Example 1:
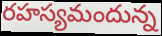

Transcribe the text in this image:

రహస్యమందున్న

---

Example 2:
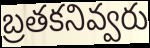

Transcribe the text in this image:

బ్రతకనివ్వరు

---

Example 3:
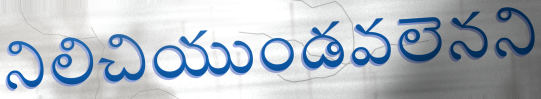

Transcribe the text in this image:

నిలిచియుండవలెనని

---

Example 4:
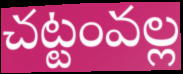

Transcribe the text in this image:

చట్టంవల్ల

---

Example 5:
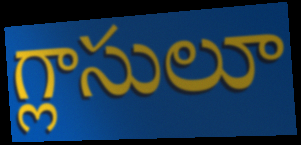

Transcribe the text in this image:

గ్లాసులూ